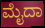
ಮೈದಾ